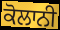
ਕੋਲਾਨੀ